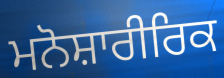
ਮਨੋਸ਼ਾਰੀਰਿਕ